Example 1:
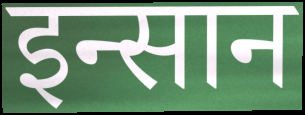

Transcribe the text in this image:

इन्सान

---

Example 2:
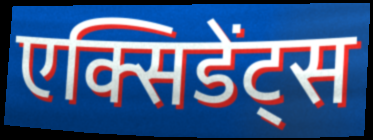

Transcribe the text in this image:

एक्सिडेंट्स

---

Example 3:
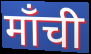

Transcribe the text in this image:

माँची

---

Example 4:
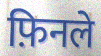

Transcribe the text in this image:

फ़िनले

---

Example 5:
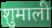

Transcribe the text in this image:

शुमाली